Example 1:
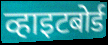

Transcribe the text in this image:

व्हाइटबोर्ड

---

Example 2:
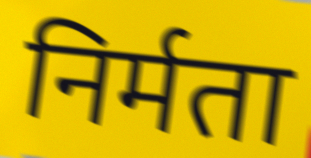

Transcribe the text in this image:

निर्मता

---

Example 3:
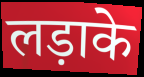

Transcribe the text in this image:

लड़ाके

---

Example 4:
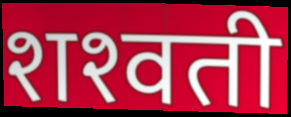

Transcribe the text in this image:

शश्वती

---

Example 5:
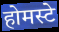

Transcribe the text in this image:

होमस्टे